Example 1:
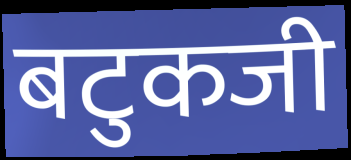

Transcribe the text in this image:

बटुकजी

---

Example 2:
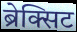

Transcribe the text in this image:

ब्रेक्सिट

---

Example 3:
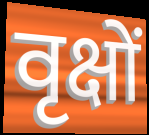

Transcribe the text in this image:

वृक्षों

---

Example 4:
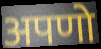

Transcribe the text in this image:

अपणो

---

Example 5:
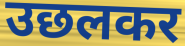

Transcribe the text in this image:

उछलकर